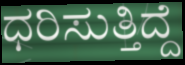
ಧರಿಸುತ್ತಿದ್ದೆ